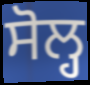
ਸੋਲ੍ਹ